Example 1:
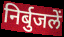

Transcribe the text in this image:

निर्बुजलें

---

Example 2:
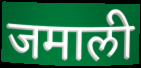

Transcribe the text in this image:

जमाली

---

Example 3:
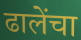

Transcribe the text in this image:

ढालेंचा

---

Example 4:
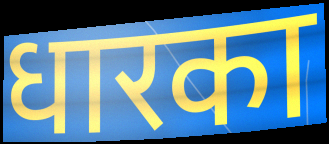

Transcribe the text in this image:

धारका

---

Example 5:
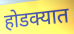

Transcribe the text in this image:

होडक्यात